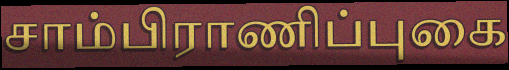
சாம்பிராணிப்புகை